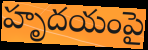
హృదయంపై